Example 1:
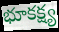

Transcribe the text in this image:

భూకక్ష్య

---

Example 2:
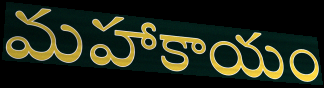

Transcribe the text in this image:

మహాకాయం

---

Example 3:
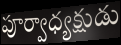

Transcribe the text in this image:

పూర్వాధ్యక్షుడు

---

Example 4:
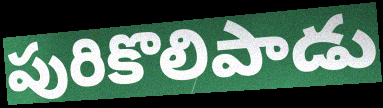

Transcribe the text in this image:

పురికొలిపాడు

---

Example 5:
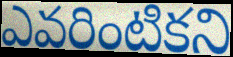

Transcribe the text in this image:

ఎవరింటికని